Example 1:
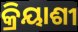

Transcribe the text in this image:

କ୍ରିୟାଶୀ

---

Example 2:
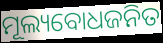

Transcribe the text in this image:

ମୂଲ୍ୟବୋଧଜନିତ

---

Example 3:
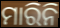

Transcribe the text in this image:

ମାରିନି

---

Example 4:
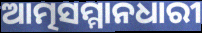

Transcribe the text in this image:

ଆତ୍ମସମ୍ମାନଧାରୀ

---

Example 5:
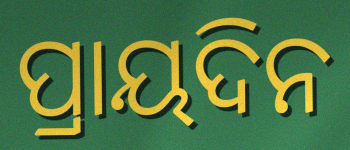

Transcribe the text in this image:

ପ୍ରାୟଦିନ